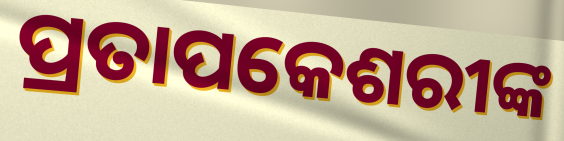
ପ୍ରତାପକେଶରୀଙ୍କ